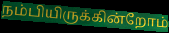
நம்பியிருக்கின்றோம்